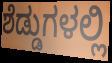
ಶೆಡ್ಡುಗಳಲ್ಲಿ